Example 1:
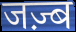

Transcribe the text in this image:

जज़्ब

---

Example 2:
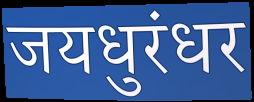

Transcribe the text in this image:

जयधुरंधर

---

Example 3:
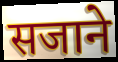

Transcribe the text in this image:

सजाने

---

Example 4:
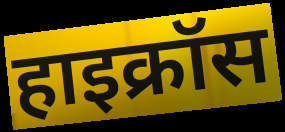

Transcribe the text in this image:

हाइक्रॉस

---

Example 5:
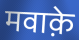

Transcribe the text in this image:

मवाक़े